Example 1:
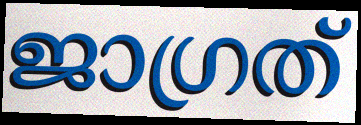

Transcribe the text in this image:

ജാഗ്രത്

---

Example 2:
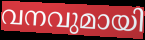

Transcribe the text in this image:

വനവുമായി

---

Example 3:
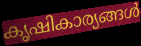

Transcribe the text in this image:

കൃഷികാര്യങ്ങൾ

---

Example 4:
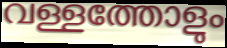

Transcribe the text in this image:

വള്ളത്തോളും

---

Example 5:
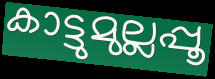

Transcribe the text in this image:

കാട്ടുമുല്ലപ്പൂ